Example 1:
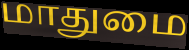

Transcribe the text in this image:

மாதுமை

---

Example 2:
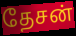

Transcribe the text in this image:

தேசன்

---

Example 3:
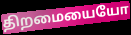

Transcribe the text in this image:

திறமையையோ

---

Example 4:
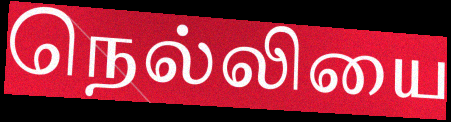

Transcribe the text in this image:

நெல்லியை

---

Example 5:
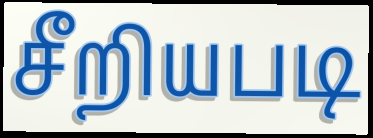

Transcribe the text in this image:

சீறியபடி